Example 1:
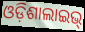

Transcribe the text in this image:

ଓଡ଼ିଶାଲାଇଭ୍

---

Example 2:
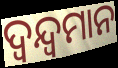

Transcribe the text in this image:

ଦ୍ଵନ୍ଦ୍ଵମାନ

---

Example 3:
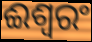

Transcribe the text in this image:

ଈଶ୍ଵରଂ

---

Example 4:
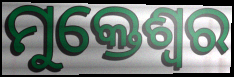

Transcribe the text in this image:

ମୁକ୍ତେଶ୍ଵର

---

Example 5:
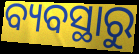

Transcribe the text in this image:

ବ୍ୟବସ୍ଥାରୁ